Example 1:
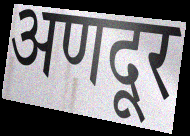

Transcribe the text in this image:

अणदूर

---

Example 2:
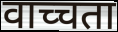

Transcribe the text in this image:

वाच्चता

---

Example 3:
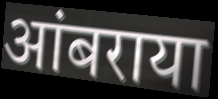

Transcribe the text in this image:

आंबराया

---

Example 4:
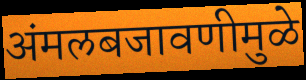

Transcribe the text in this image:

अंमलबजावणीमुळे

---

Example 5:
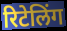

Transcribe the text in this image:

रिटेलिंग